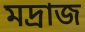
মদ্রাজ